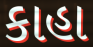
કાહા